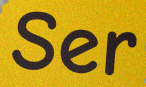
Ser